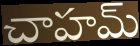
చాహమ్